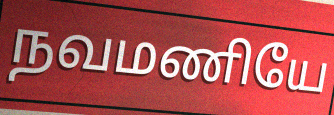
நவமணியே